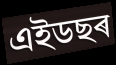
এইডছৰ